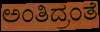
ಅಂತಿದ್ರಂತೆ